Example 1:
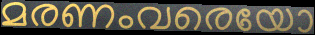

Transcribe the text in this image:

മരണംവരെയോ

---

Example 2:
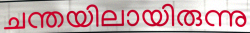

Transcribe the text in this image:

ചന്തയിലായിരുന്നു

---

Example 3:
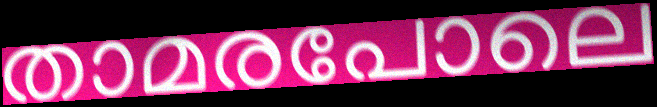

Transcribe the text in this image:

താമരപോലെ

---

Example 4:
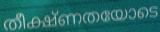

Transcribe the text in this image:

തീക്ഷ്ണതയോടെ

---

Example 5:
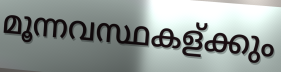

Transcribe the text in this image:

മൂന്നവസ്ഥകള്ക്കും